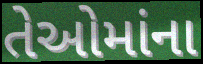
તેઓમાંના